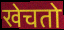
खेचतो